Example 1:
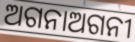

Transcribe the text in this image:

ଅଗନାଅଗନୀ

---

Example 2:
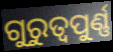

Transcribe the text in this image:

ଗୁରୁତ୍ୱପୁର୍ଣ୍ଣ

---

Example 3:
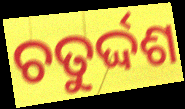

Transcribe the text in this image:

ଚତୁର୍ଦ୍ଦଶ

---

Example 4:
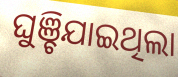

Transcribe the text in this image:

ଘୁଞ୍ଚିଯାଇଥିଲା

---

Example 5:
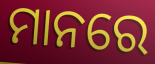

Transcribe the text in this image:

ମାନରେ